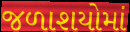
જળાશયોમાં